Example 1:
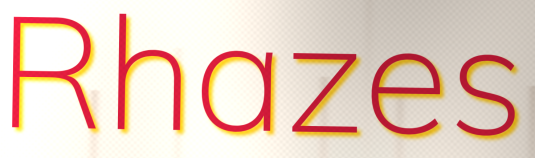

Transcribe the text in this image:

Rhazes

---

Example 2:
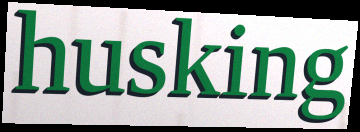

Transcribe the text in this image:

husking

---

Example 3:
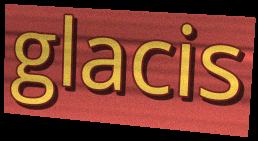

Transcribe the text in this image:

glacis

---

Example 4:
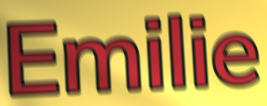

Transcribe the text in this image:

Emilie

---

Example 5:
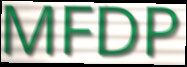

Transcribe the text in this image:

MFDP